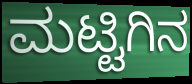
ಮಟ್ಟಿಗಿನ